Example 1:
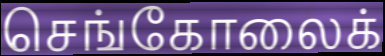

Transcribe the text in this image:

செங்கோலைக்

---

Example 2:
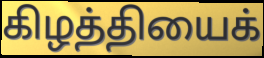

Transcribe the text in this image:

கிழத்தியைக்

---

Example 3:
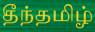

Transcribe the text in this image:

தீந்தமிழ்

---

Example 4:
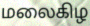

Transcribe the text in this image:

மலைகிழ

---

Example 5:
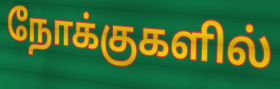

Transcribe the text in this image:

நோக்குகளில்